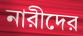
নারীদের